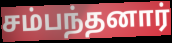
சம்பந்தனார்